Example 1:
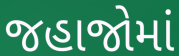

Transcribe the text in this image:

જહાજોમાં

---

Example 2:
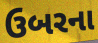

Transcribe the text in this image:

ઉબરના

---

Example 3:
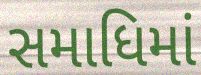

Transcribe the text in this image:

સમાધિમાં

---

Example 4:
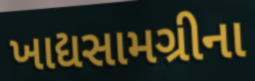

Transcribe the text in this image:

ખાદ્યસામગ્રીના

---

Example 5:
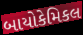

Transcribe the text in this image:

બાયોકેમિકલ